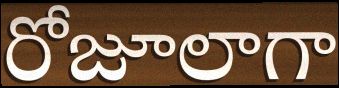
రోజూలాగా